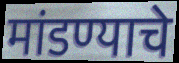
मांडण्याचे